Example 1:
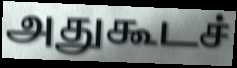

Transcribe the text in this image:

அதுகூடச்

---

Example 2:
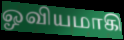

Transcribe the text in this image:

ஓவியமாகி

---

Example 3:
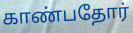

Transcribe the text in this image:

காண்பதோர்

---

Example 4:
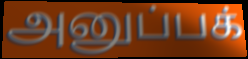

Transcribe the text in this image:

அனுப்பக்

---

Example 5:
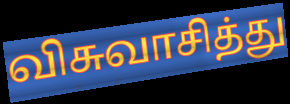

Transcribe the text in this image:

விசுவாசித்து